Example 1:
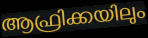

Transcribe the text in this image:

ആഫ്രിക്കയിലും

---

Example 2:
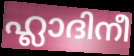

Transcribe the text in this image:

ഹ്ലാദിനീ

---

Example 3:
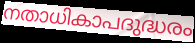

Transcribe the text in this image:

നതാധികാപദുദ്ധരം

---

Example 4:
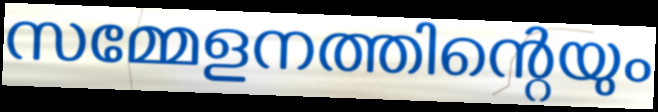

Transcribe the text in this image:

സമ്മേളനത്തിന്റെയും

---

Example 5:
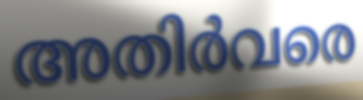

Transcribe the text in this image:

അതിർവരെ